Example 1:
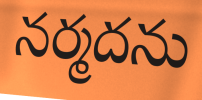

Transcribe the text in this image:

నర్మదను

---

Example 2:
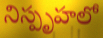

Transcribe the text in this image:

నిస్పృహలో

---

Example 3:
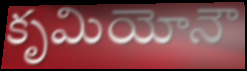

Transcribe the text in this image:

కృమియోనౌ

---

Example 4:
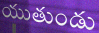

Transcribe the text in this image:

యుతుండు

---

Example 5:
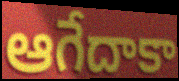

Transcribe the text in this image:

ఆగేదాకా